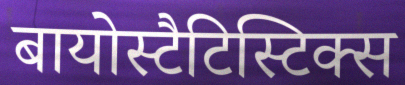
बायोस्टैटिस्टिक्स